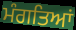
ਮੰਗਤਿਆਂ